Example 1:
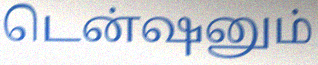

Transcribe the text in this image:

டென்ஷனும்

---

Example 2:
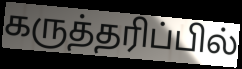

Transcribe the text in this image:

கருத்தரிப்பில்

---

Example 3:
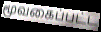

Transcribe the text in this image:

மூவகைப்பட்ட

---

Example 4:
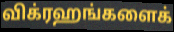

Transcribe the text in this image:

விக்ரஹங்களைக்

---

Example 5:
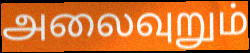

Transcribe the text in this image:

அலைவுறும்